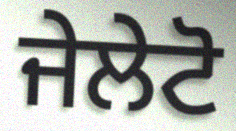
ਜੇਲੇਟੋ